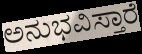
ಅನುಭವಿಸ್ತಾರೆ